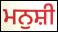
ਮਨੁਸ਼ੀ